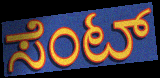
ಸೆಂಟ್